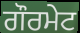
ਗੌਰਮੇਟ